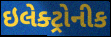
ઇલેક્ટ્રોનીક